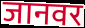
जानवर